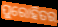
ପୁରୋହିତର